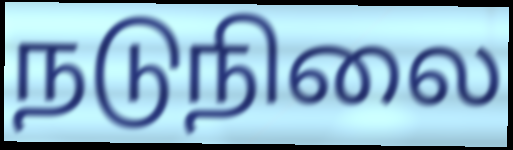
நடுநிலை